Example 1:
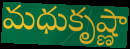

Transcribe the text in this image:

మధుకృష్ణా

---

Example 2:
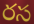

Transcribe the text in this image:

రస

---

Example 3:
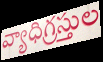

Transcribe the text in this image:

వ్యాధిగ్రస్తుల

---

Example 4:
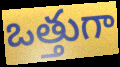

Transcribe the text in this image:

ఒత్తుగా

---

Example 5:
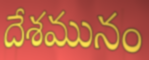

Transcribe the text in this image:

దేశమునం